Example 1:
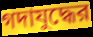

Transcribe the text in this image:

গদাযুদ্ধের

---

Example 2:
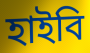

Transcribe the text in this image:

হাইবি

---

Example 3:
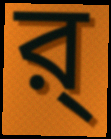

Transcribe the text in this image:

র্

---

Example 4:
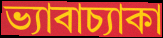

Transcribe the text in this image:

ভ্যাবাচ্যাকা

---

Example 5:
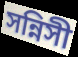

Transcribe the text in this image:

সন্নিসী